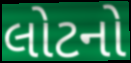
લોટનો